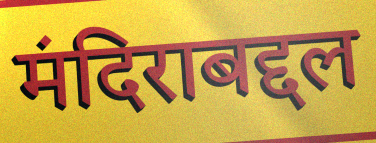
मंदिराबद्दल